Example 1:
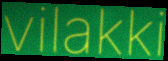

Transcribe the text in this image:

vilakki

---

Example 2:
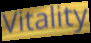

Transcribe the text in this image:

Vitality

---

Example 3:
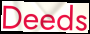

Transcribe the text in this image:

Deeds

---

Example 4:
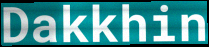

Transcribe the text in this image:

Dakkhin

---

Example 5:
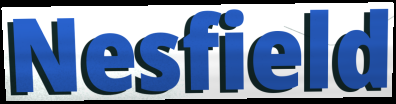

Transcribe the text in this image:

Nesfield